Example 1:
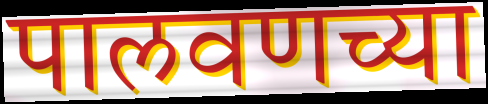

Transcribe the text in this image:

पालवणच्या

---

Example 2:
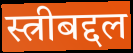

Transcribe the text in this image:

स्त्रीबद्दल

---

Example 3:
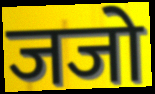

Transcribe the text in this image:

जजो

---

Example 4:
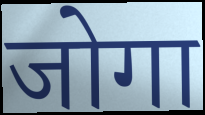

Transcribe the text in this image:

जोगा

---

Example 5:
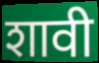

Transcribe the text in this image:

शावी